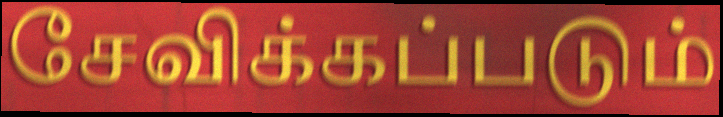
சேவிக்கப்படும்